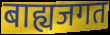
बाह्यजगत